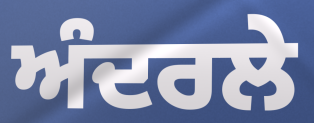
ਅੰਦਰਲੇ